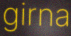
girna